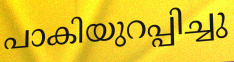
പാകിയുറപ്പിച്ചു